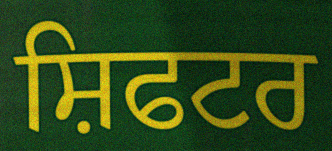
ਸ਼ਿਫਟਰ